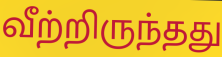
வீற்றிருந்தது